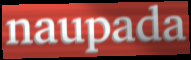
naupada